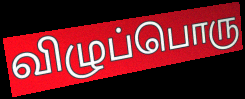
விழுப்பொரு